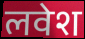
लवेश